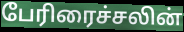
பேரிரைச்சலின்